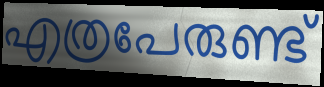
എത്രപേരുണ്ട്